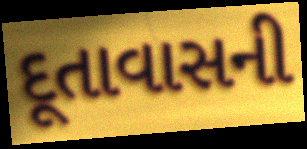
દૂતાવાસની